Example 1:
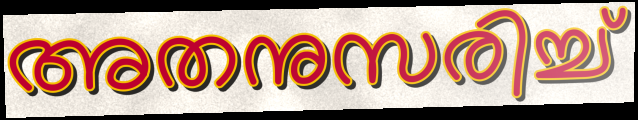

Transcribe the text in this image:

അതനുസരിച്ച്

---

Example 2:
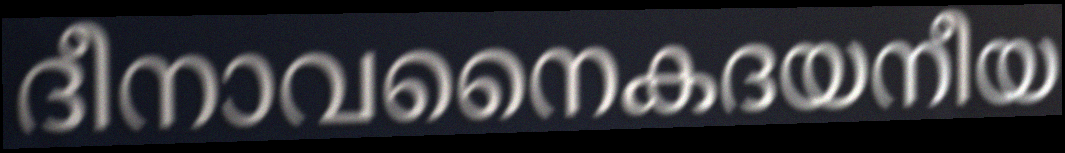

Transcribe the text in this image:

ദീനാവനൈകദയനീയ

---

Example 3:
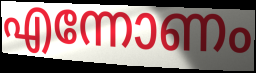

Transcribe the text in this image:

എന്നോണം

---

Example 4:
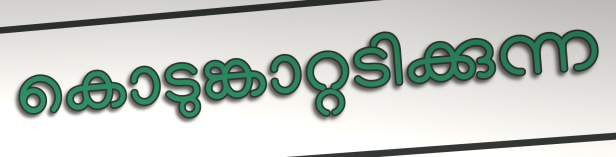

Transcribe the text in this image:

കൊടുങ്കാറ്റടിക്കുന്ന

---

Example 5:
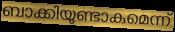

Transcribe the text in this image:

ബാക്കിയുണ്ടാകുമെന്ന്